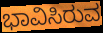
ಭಾವಿಸಿರುವ